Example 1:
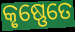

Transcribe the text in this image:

କୃଷ୍ଣେତେ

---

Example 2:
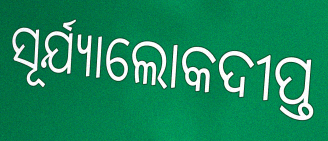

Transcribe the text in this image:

ସୂର୍ଯ୍ୟାଲୋକଦୀପ୍ତ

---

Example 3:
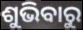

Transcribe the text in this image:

ଶୁଭିବାରୁ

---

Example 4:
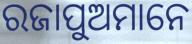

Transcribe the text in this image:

ରଜାପୁଅମାନେ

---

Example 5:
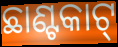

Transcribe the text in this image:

ଛାଣ୍ଟକାଟ୍